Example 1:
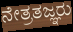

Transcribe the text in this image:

ನೇತ್ರತಜ್ಞರು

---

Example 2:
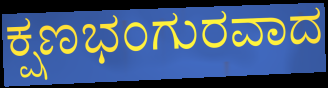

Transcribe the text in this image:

ಕ್ಷಣಭಂಗುರವಾದ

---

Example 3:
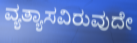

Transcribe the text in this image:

ವ್ಯತ್ಯಾಸವಿರುವುದೇ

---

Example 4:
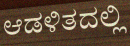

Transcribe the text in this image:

ಆಡಳಿತದಲ್ಲಿ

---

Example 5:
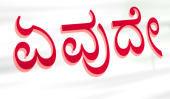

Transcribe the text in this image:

ಏವುದೇ